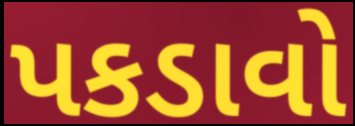
પકડાવો